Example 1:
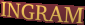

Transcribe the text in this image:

INGRAM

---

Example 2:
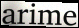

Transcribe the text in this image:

arime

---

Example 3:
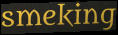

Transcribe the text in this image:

smeking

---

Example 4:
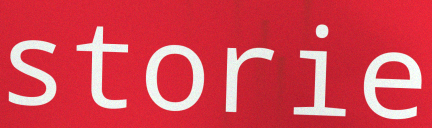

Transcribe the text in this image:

storie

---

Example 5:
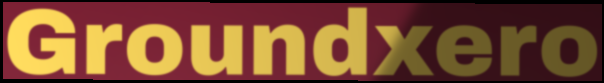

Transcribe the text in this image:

Groundxero